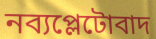
নব্যপ্লেটোবাদ